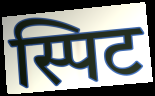
स्पिट